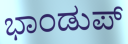
ಭಾಂಡುಪ್